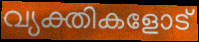
വ്യക്തികളോട്